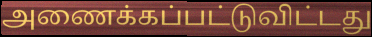
அணைக்கப்பட்டுவிட்டது